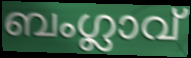
ബംഗ്ലാവ്